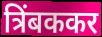
त्रिंबककर